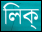
লিক্